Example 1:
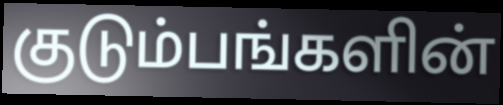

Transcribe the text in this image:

குடும்பங்களின்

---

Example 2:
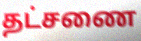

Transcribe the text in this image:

தட்சணை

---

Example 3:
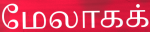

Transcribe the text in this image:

மேலாகக்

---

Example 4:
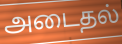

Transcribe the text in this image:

அடைதல்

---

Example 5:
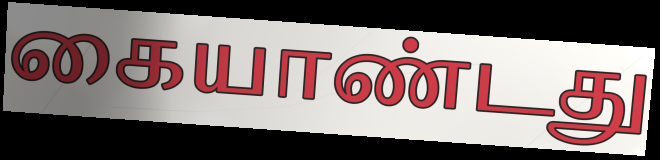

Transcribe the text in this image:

கையாண்டது